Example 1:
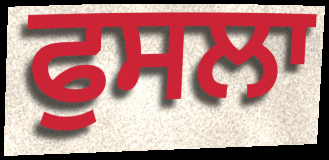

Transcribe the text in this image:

ਫੁਸਲਾ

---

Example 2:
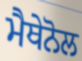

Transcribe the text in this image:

ਮੈਥੇਨੋਲ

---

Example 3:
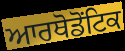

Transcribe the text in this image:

ਆਰਥੋਡੋਂਟਿਕ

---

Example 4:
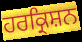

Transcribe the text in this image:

ਹਰਕ੍ਰਿਸ਼ਨ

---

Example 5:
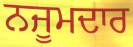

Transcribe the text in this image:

ਨਜੂਮਦਾਰ